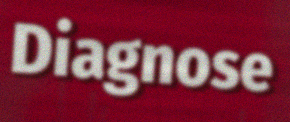
Diagnose